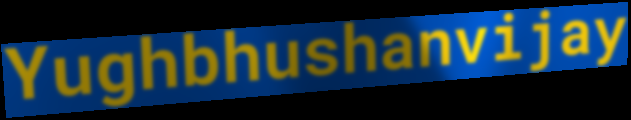
Yughbhushanvijay